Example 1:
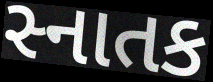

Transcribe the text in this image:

સ્નાતક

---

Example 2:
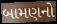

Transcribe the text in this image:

બામણનો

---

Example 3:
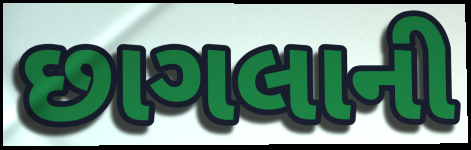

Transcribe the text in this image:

છાગલાની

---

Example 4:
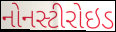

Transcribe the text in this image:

નોનસ્ટીરોઇડ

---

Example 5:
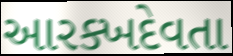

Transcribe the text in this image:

આરક્ખદેવતા